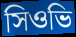
সিওভি